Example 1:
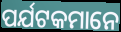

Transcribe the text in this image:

ପର୍ଯଟକମାନେ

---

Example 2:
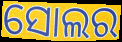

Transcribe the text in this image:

ସୋଲର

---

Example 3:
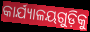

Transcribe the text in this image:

କାର୍ଯ୍ୟାଳୟଗୁଡ଼ିକୁ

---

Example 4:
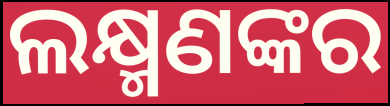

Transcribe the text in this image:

ଲକ୍ଷ୍ମଣଙ୍କର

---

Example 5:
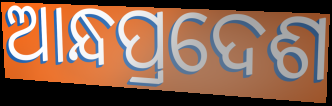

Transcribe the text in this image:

ଆନ୍ଧପ୍ରଦେଶ